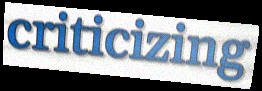
criticizing